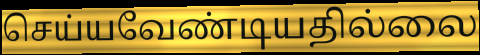
செய்யவேண்டியதில்லை